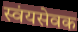
स्वंयसेवक